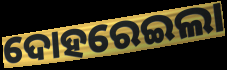
ଦୋହରେଇଲା